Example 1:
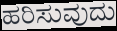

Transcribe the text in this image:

ಹರಿಸುವುದು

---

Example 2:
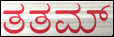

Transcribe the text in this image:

ತತಮ್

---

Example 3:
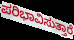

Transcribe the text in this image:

ಪರಿಭಾವಿಸುತ್ತಾರೆ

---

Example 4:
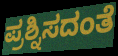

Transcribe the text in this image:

ಪ್ರಶ್ನಿಸದಂತೆ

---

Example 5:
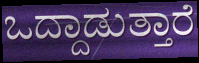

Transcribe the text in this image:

ಒದ್ದಾಡುತ್ತಾರೆ